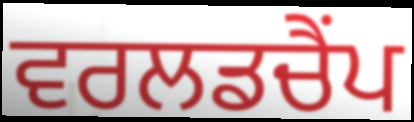
ਵਰਲਡਚੈਂਪ